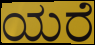
ಯರೆ